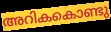
അറികകൊണ്ടു